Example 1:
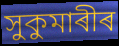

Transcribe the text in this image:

সুকুমাৰীৰ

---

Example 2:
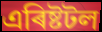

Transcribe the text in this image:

এৰিষ্টটল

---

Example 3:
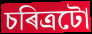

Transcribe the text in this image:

চৰিত্ৰটো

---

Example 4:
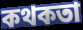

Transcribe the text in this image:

কথকতা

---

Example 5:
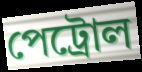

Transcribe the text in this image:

পেট্ৰোল